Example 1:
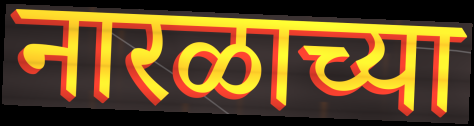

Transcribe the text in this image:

नारळाच्या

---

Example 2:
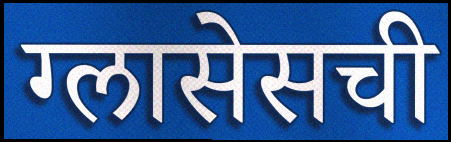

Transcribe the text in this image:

ग्लासेसची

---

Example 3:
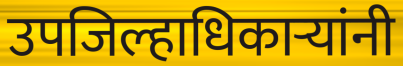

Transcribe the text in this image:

उपजिल्हाधिकाऱ्यांनी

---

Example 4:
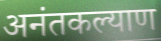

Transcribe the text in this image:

अनंतकल्याण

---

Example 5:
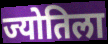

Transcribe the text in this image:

ज्योतिला